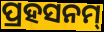
ପ୍ରହସନମ୍